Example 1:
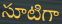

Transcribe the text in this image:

సూటిగా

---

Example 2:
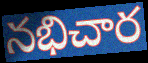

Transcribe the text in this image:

నభిచార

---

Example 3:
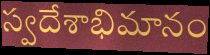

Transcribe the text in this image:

స్వదేశాభిమానం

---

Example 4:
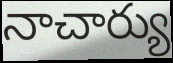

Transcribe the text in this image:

నాచార్యు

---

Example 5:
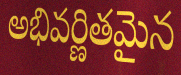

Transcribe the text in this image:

అభివర్ణితమైన